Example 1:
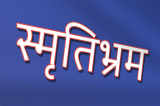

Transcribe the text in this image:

स्मृतिभ्रम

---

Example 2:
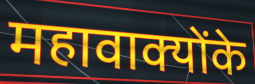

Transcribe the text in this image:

महावाक्योंके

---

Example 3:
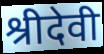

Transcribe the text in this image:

श्रीदेवी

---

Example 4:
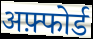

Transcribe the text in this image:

अफ़्फोर्ड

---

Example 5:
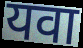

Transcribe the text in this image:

यवा